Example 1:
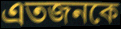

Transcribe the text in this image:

এতজনকে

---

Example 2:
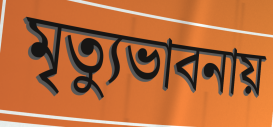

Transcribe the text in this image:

মৃত্যুভাবনায়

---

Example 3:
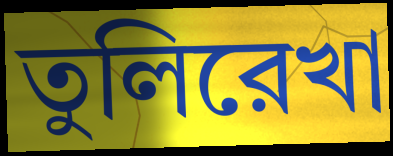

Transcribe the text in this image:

তুলিরেখা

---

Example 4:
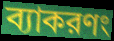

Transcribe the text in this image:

ব্যাকরণং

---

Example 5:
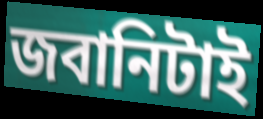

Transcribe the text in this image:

জবানিটাই